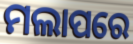
ମଲାପରେ